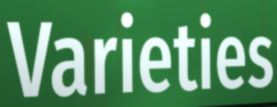
Varieties